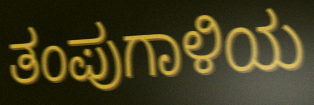
ತಂಪುಗಾಳಿಯ